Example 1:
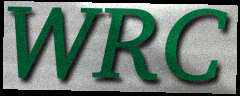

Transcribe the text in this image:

WRC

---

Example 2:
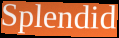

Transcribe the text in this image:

Splendid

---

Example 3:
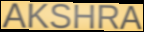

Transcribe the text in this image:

AKSHRA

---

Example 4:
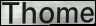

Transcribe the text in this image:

Thome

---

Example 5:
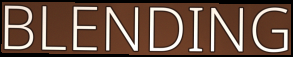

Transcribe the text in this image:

BLENDING